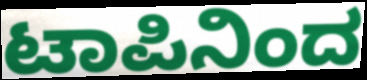
ಟಾಪಿನಿಂದ